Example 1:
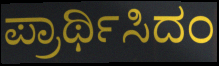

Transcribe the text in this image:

ಪ್ರಾರ್ಥಿಸಿದಂ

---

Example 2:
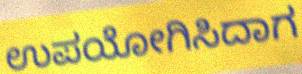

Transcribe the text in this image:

ಉಪಯೋಗಿಸಿದಾಗ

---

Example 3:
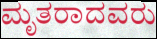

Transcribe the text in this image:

ಮೃತರಾದವರು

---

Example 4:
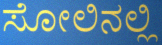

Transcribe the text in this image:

ಸೋಲಿನಲ್ಲಿ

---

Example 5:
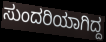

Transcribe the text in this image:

ಸುಂದರಿಯಾಗಿದ್ದ